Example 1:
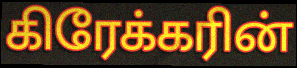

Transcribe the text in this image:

கிரேக்கரின்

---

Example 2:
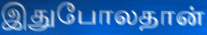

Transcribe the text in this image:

இதுபோலதான்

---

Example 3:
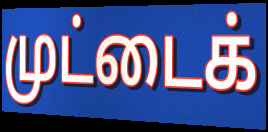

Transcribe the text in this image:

முட்டைக்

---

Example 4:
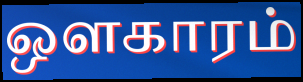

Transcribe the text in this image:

ஔகாரம்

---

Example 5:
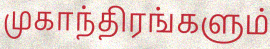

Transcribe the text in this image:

முகாந்திரங்களும்